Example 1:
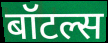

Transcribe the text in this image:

बॉटल्स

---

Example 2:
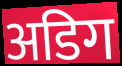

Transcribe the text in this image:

अडिग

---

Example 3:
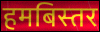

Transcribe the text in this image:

हमबिस्तर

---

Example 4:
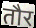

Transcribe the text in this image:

तौर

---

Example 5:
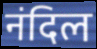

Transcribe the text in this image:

नंदिल